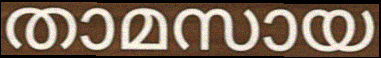
താമസായ